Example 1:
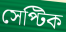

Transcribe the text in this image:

সেপ্টিক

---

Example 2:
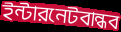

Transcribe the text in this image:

ইন্টারনেটবান্ধব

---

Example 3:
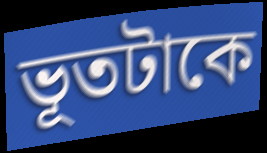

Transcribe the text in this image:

ভূতটাকে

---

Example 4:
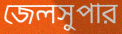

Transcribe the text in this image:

জেলসুপার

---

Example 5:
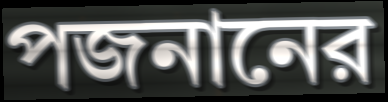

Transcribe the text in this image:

পজনানের